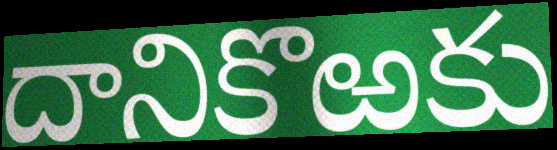
దానికొఱకు